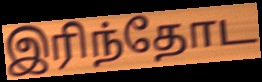
இரிந்தோட